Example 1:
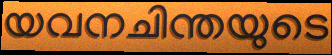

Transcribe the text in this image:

യവനചിന്തയുടെ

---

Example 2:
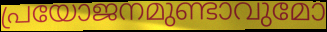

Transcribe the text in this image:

പ്രയോജനമുണ്ടാവുമോ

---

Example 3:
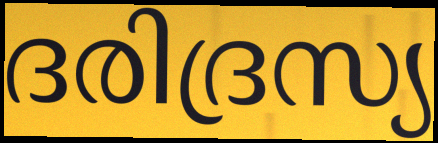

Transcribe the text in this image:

ദരിദ്രസ്യ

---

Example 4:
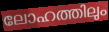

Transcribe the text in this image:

ലോഹത്തിലും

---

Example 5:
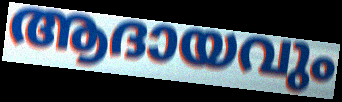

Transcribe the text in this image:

ആദായവും